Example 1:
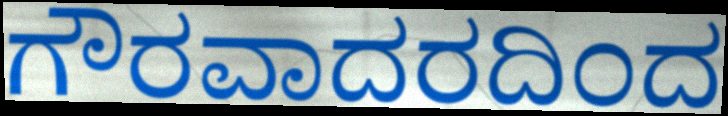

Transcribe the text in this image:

ಗೌರವಾದರದಿಂದ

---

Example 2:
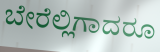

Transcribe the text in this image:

ಬೇರೆಲ್ಲಿಗಾದರೂ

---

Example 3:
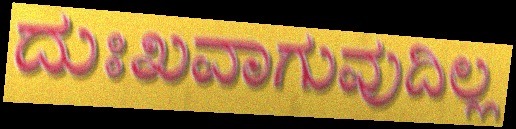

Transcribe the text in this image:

ದುಃಖವಾಗುವುದಿಲ್ಲ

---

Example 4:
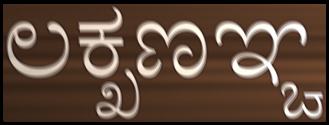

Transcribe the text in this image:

ಲಕ್ಖಣಞ್ಚ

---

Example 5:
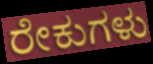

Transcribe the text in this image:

ರೇಕುಗಳು